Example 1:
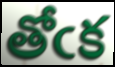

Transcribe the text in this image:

తోఁక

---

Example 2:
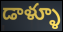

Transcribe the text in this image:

డాళ్ళూ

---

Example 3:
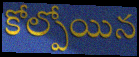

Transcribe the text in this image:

కోల్పోయిన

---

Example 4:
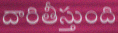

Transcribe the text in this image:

దారితీస్తుంది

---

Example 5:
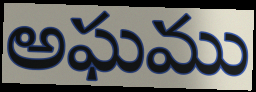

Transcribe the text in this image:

అఘము